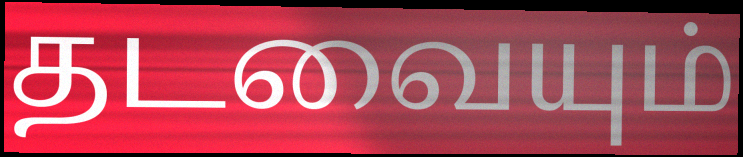
தடவையும்